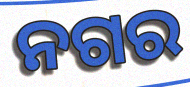
ନଗର